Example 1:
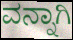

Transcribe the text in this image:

ವನ್ನಾಗಿ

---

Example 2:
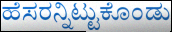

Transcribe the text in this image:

ಹೆಸರನ್ನಿಟ್ಟುಕೊಂಡು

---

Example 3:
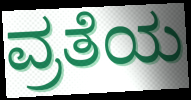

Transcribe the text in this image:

ವ್ರತೆಯ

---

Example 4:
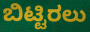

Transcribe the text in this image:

ಬಿಟ್ಟಿರಲು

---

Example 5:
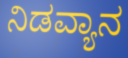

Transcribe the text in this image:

ನಿಡವ್ಯಾನ